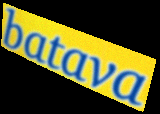
batava